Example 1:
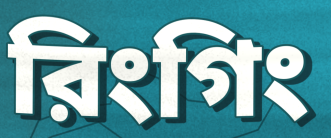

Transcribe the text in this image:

রিংগিং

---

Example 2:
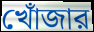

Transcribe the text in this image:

খোঁজার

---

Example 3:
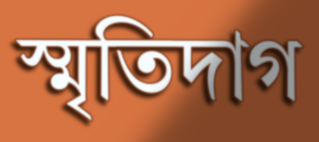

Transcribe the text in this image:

স্মৃতিদাগ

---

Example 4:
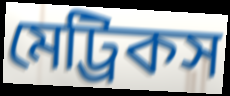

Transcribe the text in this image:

মেট্রিকস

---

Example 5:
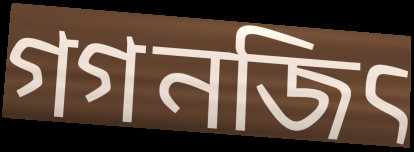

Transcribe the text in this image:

গগনজিৎ